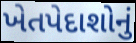
ખેતપેદાશોનું